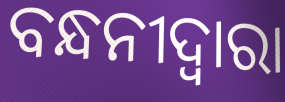
ବନ୍ଧନୀଦ୍ୱାରା